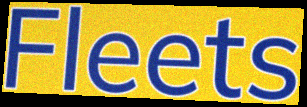
Fleets